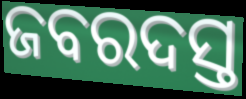
ଜବରଦସ୍ତ